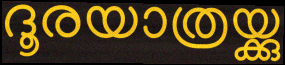
ദൂരയാത്രയ്ക്കു